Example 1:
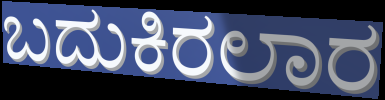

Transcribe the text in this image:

ಬದುಕಿರಲಾರ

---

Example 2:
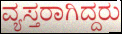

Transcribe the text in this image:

ವ್ಯಸ್ತರಾಗಿದ್ದರು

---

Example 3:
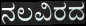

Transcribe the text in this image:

ನಲವಿರದ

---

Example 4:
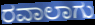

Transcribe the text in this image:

ರವಾಲಾಗು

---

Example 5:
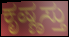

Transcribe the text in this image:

ಕೃಷ್ಣಸ್ತು